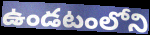
ఉండటంలోని